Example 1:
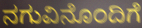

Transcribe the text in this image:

ನಗುವಿನೊಂದಿಗೆ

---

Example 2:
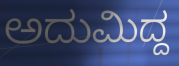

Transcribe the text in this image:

ಅದುಮಿದ್ದ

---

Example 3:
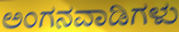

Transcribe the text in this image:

ಅಂಗನವಾಡಿಗಳು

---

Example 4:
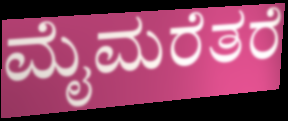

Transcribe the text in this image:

ಮೈಮರೆತರೆ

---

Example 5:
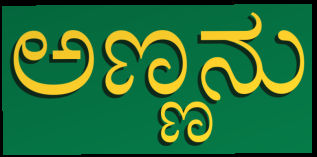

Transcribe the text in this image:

ಅಣ್ಣನು